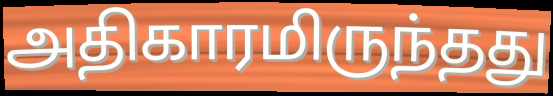
அதிகாரமிருந்தது